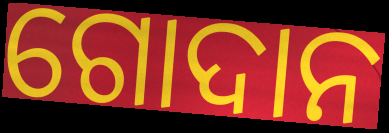
ଗୋଦାନ